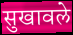
सुखावले